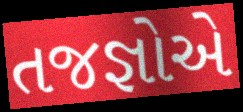
તજજ્ઞોએ